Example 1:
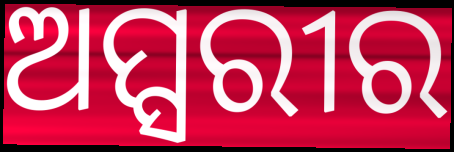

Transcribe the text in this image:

ଅପ୍ସରୀର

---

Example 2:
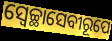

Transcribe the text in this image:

ସ୍ଵେଚ୍ଛାସେବୀରୂପେ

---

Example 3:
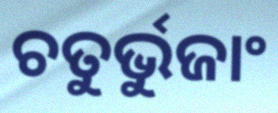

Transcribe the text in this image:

ଚତୁର୍ଭୁଜାଂ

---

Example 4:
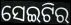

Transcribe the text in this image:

ସେଇଟିର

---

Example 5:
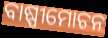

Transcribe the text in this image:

ବାଷ୍ପୀମୋଚନ